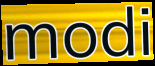
modi